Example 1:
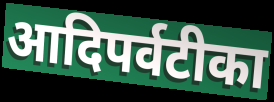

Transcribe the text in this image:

आदिपर्वटीका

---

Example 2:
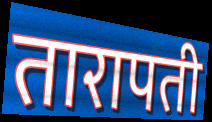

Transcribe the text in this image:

तारापती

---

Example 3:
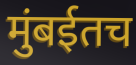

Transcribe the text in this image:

मुंबईतच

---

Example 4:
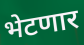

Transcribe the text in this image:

भेटणार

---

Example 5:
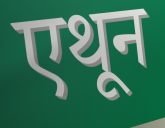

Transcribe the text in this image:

एथून